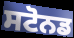
ਸਟੋਨਡ